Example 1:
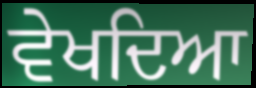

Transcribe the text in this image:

ਵੇਖਦਿਆ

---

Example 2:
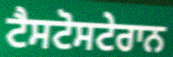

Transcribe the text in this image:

ਟੈਸਟੋਸਟੇਰਾਨ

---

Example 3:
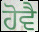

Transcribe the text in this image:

ਹੋਵੈ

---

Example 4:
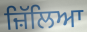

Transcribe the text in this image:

ਜ਼ਿੱਲਿਆ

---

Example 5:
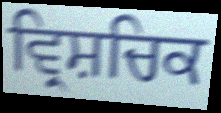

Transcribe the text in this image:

ਵ੍ਰਿਸ਼ਚਿਕ